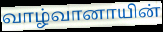
வாழ்வானாயின்